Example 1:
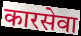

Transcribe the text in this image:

कारसेवा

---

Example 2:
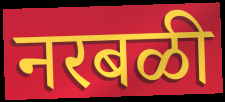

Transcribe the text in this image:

नरबळी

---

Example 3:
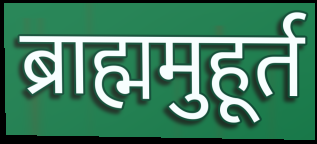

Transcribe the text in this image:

ब्राह्ममुहूर्त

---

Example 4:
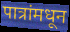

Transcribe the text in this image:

पात्रांमधून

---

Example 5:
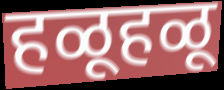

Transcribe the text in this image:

हळूहळू